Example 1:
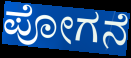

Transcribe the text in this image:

ಪೋಗನೆ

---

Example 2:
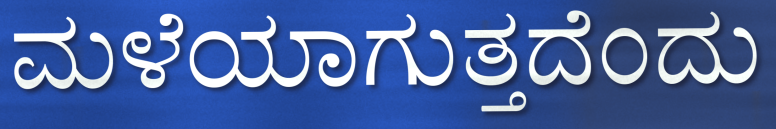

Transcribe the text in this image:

ಮಳೆಯಾಗುತ್ತದೆಂದು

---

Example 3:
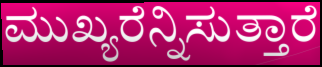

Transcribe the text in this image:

ಮುಖ್ಯರೆನ್ನಿಸುತ್ತಾರೆ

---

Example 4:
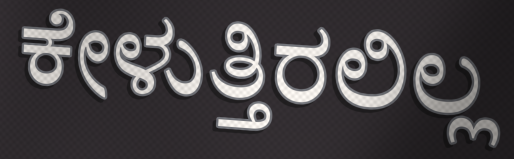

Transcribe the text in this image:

ಕೇಳುತ್ತಿರಲಿಲ್ಲ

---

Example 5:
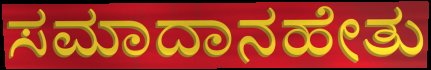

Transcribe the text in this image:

ಸಮಾದಾನಹೇತು